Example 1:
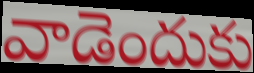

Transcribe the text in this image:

వాడెందుకు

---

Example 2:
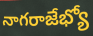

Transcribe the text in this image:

నాగరాజేభ్యో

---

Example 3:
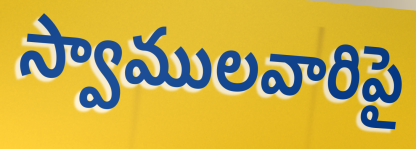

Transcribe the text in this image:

స్వాములవారిపై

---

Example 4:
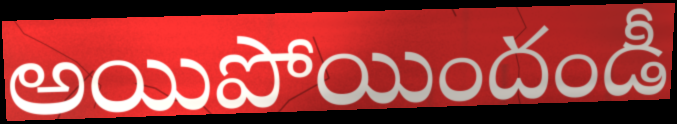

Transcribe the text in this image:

అయిపోయిందండీ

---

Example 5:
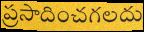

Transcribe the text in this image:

ప్రసాదించగలదు